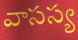
వాసస్య